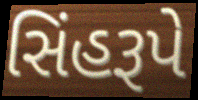
સિંહરૂપે